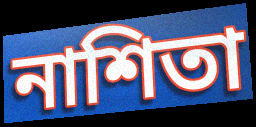
নাশিতা